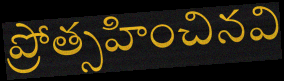
ప్రోత్సహించినవి